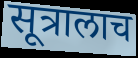
सूत्रालाच